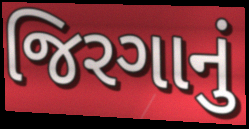
જિરગાનું